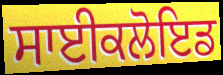
ਸਾਈਕਲੋਇਡ